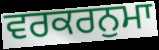
ਵਰਕਰਨੁਮਾ